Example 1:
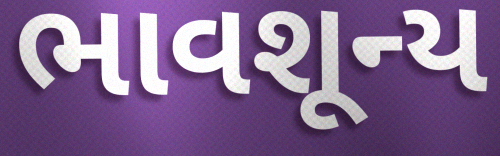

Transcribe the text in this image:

ભાવશૂન્ય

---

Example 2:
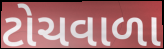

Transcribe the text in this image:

ટોચવાળા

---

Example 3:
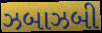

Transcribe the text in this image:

ઝબાઝબી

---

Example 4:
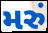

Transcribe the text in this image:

મરું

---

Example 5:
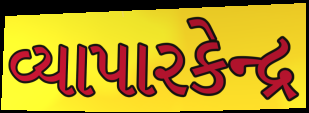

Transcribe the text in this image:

વ્યાપારકેન્દ્ર